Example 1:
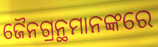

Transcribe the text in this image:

ଜୈନଗ୍ରନ୍ଥମାନଙ୍କରେ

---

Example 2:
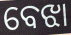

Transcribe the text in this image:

ବେଝା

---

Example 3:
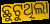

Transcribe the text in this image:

ଛୁଟୁଥିଲା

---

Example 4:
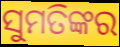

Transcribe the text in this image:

ସୁମତିଙ୍କର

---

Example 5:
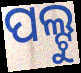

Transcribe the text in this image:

ପଲ୍ଟୁ